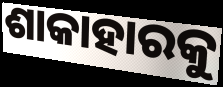
ଶାକାହାରକୁ